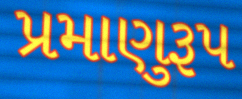
પ્રમાણુરૂપ